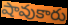
షావుకారు